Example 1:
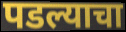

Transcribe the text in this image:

पडल्याचा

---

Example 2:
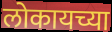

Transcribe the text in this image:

लोकायच्या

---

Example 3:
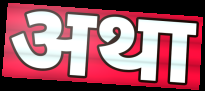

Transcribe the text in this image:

अथा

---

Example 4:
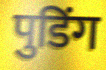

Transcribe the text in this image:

पुडिंग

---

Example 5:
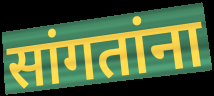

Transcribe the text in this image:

सांगतांना